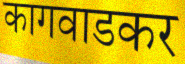
कागवाडकर